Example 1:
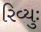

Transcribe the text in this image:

રિવ્યુઃ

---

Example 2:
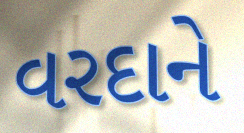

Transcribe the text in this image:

વરદાને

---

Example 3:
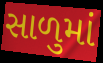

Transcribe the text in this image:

સાળુમાં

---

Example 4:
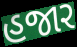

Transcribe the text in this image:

હજાર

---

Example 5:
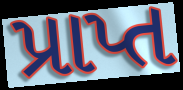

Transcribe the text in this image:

પ્રાપ્‍ત